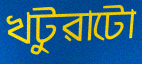
খটুৱাটো